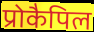
प्रोकैपिल